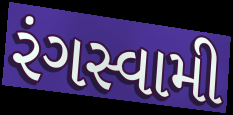
રંગસ્વામી